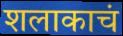
शलाकाचं